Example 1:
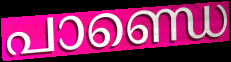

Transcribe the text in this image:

പാണ്ഡെ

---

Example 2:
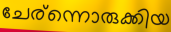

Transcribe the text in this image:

ചേര്ന്നൊരുക്കിയ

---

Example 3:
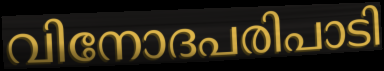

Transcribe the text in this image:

വിനോദപരിപാടി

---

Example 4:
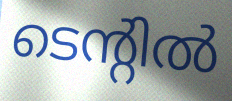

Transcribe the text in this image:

ടെന്റിൽ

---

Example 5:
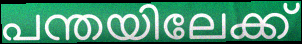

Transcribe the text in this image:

പന്തയിലേക്ക്